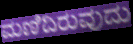
ಮಣಿದಿರುವುದು